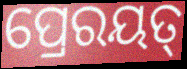
ପ୍ରେରୟତ୍